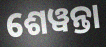
ଶେୱନ୍ତା